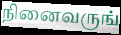
நினைவருங்